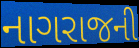
નાગરાજની